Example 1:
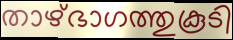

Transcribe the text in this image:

താഴ്ഭാഗത്തുകൂടി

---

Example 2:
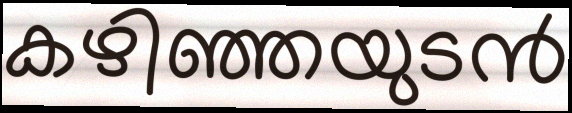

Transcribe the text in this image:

കഴിഞ്ഞയുടൻ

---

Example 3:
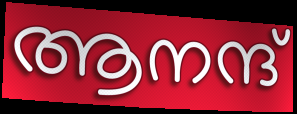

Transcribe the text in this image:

ആനന്ദ്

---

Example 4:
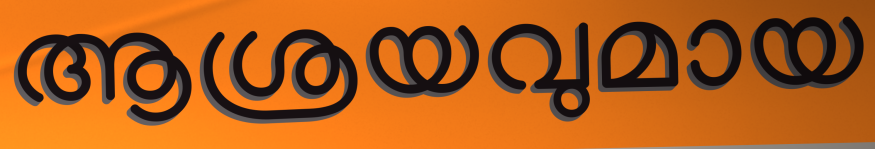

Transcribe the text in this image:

ആശ്രയവുമായ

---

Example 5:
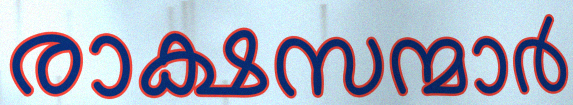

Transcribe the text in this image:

രാക്ഷസന്മാർ